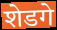
शेडगे